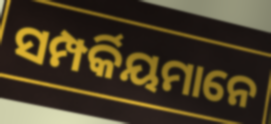
ସମ୍ପର୍କିୟମାନେ